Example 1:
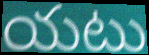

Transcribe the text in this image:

యటు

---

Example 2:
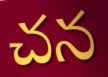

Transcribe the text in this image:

చన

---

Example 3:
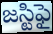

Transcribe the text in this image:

జస్టిఫై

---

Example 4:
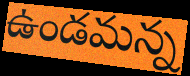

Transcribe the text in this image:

ఉండమన్న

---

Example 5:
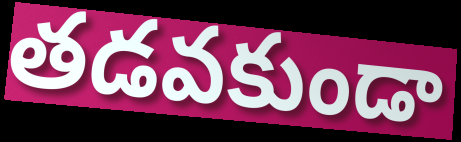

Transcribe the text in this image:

తడవకుండా